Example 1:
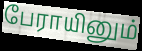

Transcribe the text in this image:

பேராயினும்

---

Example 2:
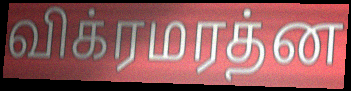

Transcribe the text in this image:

விக்ரமரத்ன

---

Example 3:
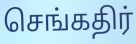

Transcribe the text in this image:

செங்கதிர்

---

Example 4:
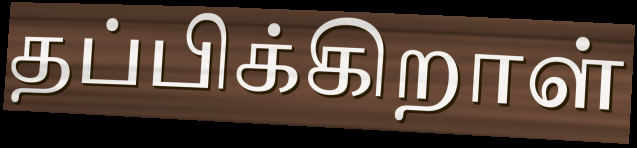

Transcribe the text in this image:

தப்பிக்கிறாள்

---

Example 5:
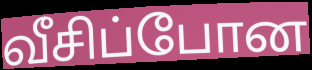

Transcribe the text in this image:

வீசிப்போன